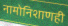
नामोनिशाणही